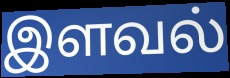
இளவல்